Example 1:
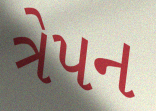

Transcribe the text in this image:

ત્રેપન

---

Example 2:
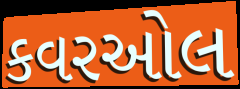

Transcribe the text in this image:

કવરઓલ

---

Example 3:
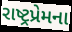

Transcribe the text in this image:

રાષ્ટ્રપ્રેમના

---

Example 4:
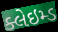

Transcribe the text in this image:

ક્લેઇમ્ડ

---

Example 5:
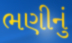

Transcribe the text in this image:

ભણીનું